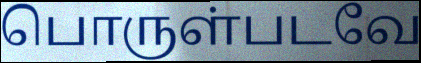
பொருள்படவே